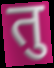
तु